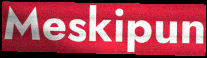
Meskipun